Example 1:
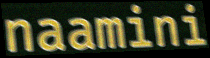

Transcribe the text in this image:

naamini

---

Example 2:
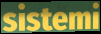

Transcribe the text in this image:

sistemi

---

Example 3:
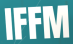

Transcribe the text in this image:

IFFM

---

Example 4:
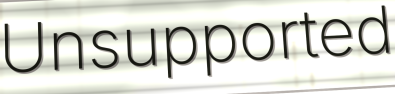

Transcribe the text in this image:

Unsupported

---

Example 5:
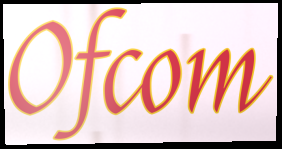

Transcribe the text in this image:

Ofcom